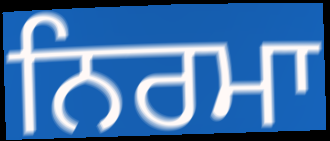
ਨਿਰਮਾ